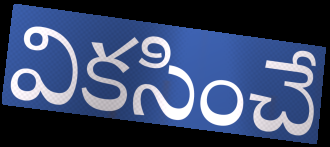
వికసించే